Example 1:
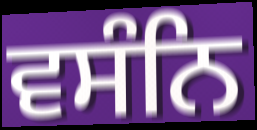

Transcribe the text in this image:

ਵਸੰਨਿ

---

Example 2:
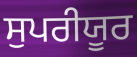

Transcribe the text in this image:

ਸੁਪਰੀਯੂਰ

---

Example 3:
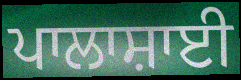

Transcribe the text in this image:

ਪਾਲਾਸ਼ਾਈ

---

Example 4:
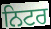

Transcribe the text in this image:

ਨਿਟਰ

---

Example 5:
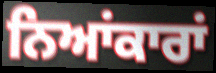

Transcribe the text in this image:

ਨਿਆਂਕਾਰਾਂ